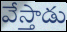
వేస్తాడు